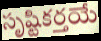
సృష్టికర్తయే